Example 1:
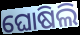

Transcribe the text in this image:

ଘୋଷିଲି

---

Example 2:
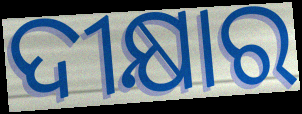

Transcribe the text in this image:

ଦୀକ୍ଷାର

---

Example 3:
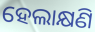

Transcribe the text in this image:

ହେଲାକ୍ଷଣି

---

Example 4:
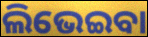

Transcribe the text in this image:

ଲିଭେଇବା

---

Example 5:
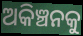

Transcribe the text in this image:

ଅକିଞ୍ଚନକୁ